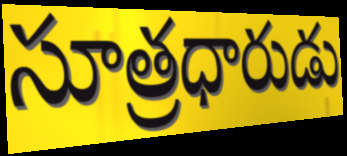
సూత్రధారుడు